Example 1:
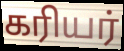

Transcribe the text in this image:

கரியர்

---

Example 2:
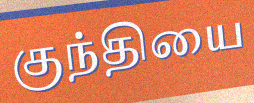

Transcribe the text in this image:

குந்தியை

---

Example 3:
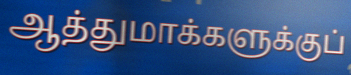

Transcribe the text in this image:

ஆத்துமாக்களுக்குப்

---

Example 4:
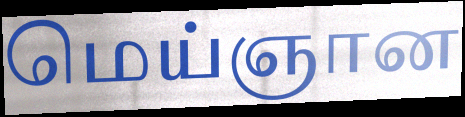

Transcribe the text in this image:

மெய்ஞான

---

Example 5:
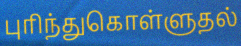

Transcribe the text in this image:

புரிந்துகொள்ளுதல்